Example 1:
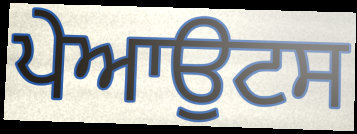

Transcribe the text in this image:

ਪੇਆਉਟਸ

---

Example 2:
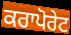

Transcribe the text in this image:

ਕਰਾਪੋਰੇਟ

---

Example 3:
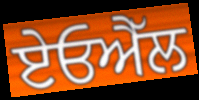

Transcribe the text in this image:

ਏਓਐੱਲ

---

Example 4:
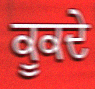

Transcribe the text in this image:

ਕੂਕਦੇ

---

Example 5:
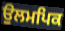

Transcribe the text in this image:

ਉਲਮਪਿਕ